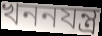
খননযন্ত্র